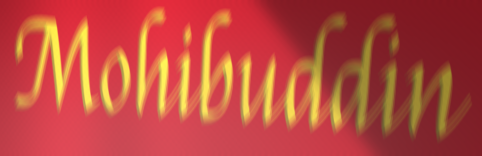
Mohibuddin